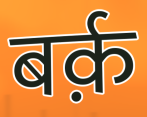
बर्क़